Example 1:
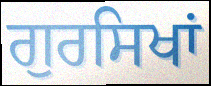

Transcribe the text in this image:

ਗੁਰਸਿਖਾਂ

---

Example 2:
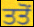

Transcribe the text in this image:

ਤਤੋਂ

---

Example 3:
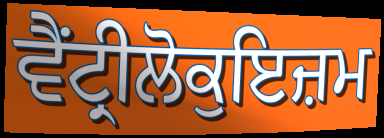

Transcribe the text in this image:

ਵੈਂਟ੍ਰੀਲੋਕੁਇਜ਼ਮ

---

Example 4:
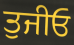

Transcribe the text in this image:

ਤੁਜੀਓ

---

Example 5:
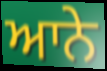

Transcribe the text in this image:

ਆਨੇ